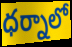
ధర్నాలో